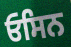
ਓਸਿਨ